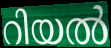
റിയൽ